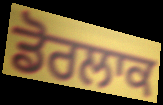
ਡੋਰਲਾਕ